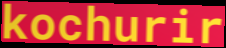
kochurir